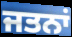
ਜਤਨਾਂ